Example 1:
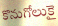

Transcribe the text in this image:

కొనుగోలుకై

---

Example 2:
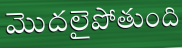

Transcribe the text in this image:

మొదలైపోతుంది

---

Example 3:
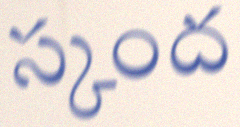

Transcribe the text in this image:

స్కంద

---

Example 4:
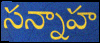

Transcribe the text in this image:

సన్నాహ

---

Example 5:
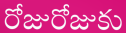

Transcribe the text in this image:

రోజురోజుకు